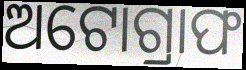
ଅଟୋଗ୍ରାଫ